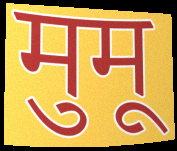
मुमू